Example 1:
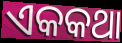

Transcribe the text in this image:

ଏକକଥା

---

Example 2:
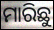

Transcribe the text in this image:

ମାରିଛୁ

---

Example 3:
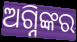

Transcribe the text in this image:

ଅଗ୍ନିଙ୍କର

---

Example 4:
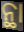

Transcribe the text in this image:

ନ୍ଥା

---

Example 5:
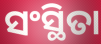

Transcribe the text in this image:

ସଂସ୍ଥିତା